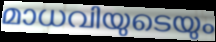
മാധവിയുടെയും